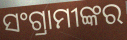
ସଂଗ୍ରାମୀଙ୍କର